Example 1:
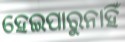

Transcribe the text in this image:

ହେଇପାରୁନାହିଁ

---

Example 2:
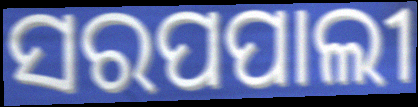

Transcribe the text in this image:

ସରପପାଲୀ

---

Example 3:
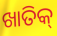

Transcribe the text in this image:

ଖାତିକ୍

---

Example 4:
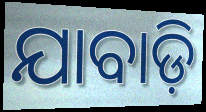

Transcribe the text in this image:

ଯାବାଡ଼ି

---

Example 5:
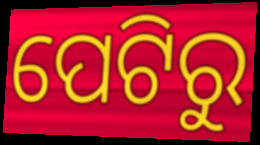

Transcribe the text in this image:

ପେଟିରୁ